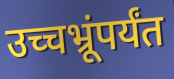
उच्चभ्रूंपर्यंत